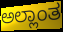
ಅಲ್ಲಾಂತ